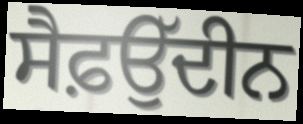
ਸੈਫ਼ਉੱਦੀਨ